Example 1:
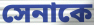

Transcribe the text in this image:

সেনাকে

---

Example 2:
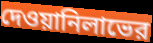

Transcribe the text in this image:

দেওয়ানিলাভের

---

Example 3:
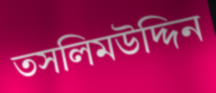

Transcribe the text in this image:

তসলিমউদ্দিন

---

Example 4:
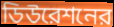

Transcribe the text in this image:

ডিউরেশনের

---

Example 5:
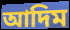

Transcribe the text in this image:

আদিম